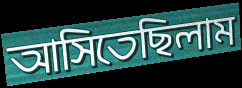
আসিতেছিলাম